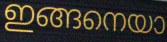
ഇങ്ങനെയാ